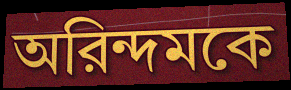
অরিন্দমকে